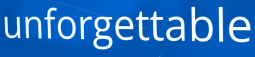
unforgettable